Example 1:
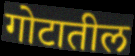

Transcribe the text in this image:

गोटातील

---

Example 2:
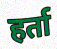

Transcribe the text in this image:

हर्ता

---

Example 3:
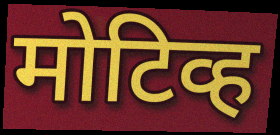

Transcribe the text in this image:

मोटिव्ह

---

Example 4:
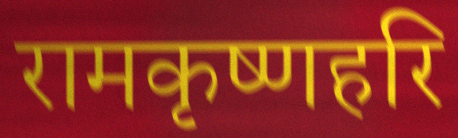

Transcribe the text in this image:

रामकृष्णहरि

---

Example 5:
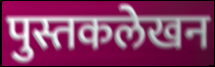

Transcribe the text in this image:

पुस्तकलेखन